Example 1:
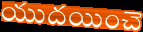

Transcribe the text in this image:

యుదయించె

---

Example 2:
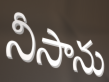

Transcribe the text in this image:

నీసాను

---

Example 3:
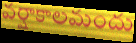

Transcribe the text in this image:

వర్షాకాలమందు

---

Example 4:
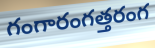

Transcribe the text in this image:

గంగారంగత్తరంగ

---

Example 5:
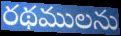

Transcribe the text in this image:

రథములను